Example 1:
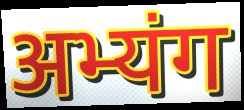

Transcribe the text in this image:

अभ्यंग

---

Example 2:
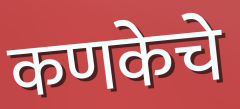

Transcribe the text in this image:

कणकेचे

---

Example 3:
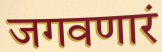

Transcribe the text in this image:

जगवणारं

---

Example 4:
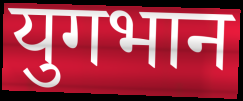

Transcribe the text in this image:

युगभान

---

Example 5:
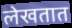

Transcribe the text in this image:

लेखतात